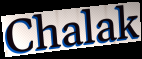
Chalak